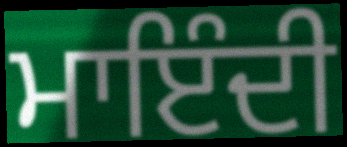
ਮਾਇੰਦੀ